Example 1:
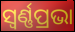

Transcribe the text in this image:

ସ୍ୱର୍ଣ୍ଣପ୍ରଭା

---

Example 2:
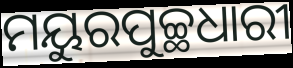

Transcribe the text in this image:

ମୟୁରପୁଚ୍ଛଧାରୀ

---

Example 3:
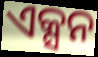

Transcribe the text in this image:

ଏକ୍ସନ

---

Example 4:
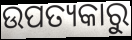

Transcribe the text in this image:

ଉପତ୍ୟକାରୁ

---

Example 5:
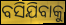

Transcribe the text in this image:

ବସିଯିବାକୁ